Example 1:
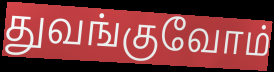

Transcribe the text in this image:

துவங்குவோம்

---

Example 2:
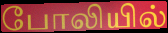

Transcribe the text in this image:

போலியில்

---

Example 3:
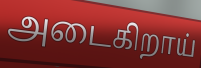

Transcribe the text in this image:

அடைகிறாய்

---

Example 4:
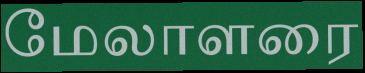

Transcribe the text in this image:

மேலாளரை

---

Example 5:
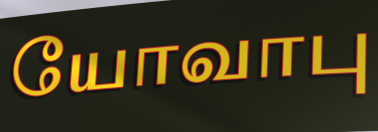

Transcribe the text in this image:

யோவாபு